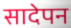
सादेपन